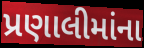
પ્રણાલીમાંના